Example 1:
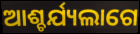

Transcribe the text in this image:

ଆଶ୍ଚର୍ଯ୍ୟଲାଗେ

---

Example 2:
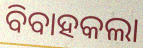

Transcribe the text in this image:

ବିବାହକଲା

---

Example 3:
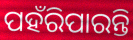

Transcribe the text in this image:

ପହଁରିପାରନ୍ତି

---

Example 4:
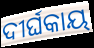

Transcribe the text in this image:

ଦୀର୍ଘକାୟ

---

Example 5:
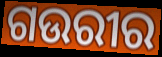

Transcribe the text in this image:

ଗଉରୀର